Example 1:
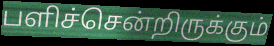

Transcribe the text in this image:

பளிச்சென்றிருக்கும்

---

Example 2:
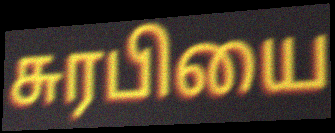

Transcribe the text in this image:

சுரபியை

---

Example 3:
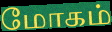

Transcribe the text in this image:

மோகம்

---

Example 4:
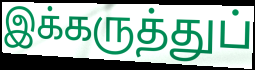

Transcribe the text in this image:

இக்கருத்துப்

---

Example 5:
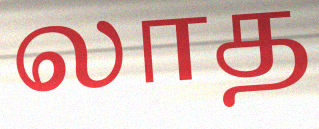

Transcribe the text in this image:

லாத